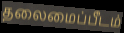
தலைமைப்பீடம்